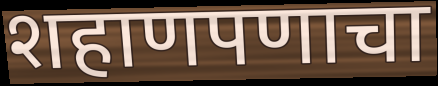
शहाणपणाचा